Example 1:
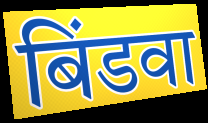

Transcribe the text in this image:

बिंडवा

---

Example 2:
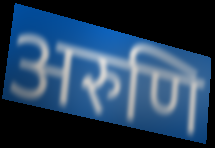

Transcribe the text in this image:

अरुणि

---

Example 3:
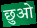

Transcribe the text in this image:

छुओ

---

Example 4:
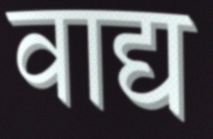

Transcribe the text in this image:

वाद्य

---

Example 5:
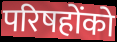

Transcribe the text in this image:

परिषहोंको